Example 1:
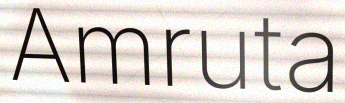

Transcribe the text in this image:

Amruta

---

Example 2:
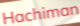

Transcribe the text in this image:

Hachiman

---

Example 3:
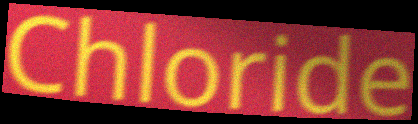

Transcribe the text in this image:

Chloride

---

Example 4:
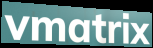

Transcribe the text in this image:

vmatrix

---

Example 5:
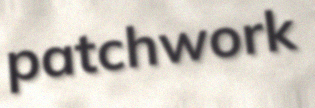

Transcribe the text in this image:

patchwork